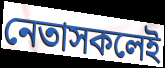
নেতাসকলেই